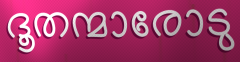
ദൂതന്മാരോടു